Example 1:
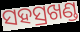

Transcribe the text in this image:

ସହସ୍ରଖଣ୍ଡ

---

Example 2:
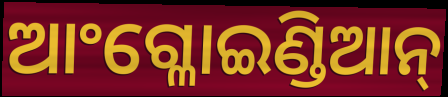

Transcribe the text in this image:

ଆଂଗ୍ଳୋଇଣ୍ଡିଆନ୍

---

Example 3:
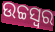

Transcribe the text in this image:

ଉଚ୍ଚସ୍ବର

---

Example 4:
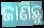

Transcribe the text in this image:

ଜାଣିଛୁ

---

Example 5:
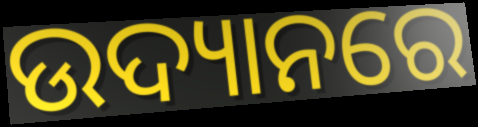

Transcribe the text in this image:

ଉଦ୍ୟାନରେ